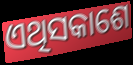
ଏଥିସକାଶେ